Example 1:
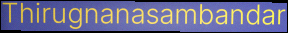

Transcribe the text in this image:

Thirugnanasambandar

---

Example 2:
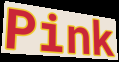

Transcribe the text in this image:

Pink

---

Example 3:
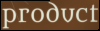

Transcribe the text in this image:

product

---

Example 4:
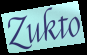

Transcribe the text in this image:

Zukto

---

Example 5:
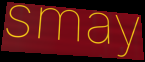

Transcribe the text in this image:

smay